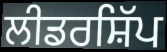
ਲੀਡਰਸ਼ਿੱਪ